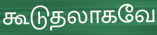
கூடுதலாகவே